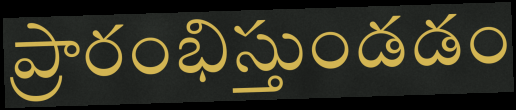
ప్రారంభిస్తుండడం